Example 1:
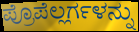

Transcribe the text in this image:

ಪ್ರೊಪೆಲ್ಲರ್ಗಳನ್ನು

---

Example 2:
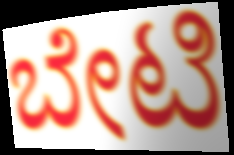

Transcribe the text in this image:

ಬೇಟಿ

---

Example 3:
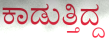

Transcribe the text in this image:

ಕಾಡುತ್ತಿದ್ದ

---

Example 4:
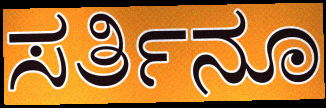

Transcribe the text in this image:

ಸರ್ತಿನೂ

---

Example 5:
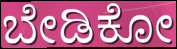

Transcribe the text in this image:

ಬೇಡಿಕೋ